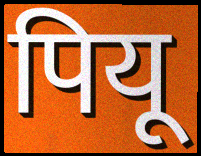
पियू